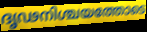
ദൃഢനിശ്ചയത്തോടെ